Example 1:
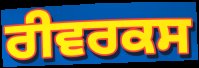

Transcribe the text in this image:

ਰੀਵਰਕਸ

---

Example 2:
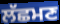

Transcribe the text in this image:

ਲੱਛਮਣ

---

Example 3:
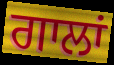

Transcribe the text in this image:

ਗਾਲਾਂ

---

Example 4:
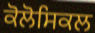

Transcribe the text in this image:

ਕੋਲੋਸਿਕਲ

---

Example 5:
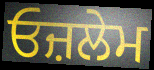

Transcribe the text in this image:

ਓਜ਼ਲੇਮ